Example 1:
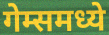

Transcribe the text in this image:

गेम्समध्ये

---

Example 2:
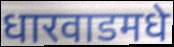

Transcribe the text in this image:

धारवाडमधे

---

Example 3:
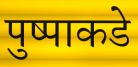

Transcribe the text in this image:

पुष्पाकडे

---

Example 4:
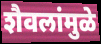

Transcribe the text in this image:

शैवलांमुळे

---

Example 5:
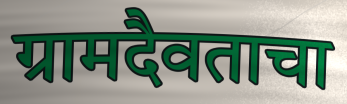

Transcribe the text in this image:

ग्रामदैवताचा